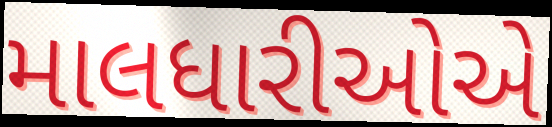
માલધારીઓએ